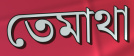
তেমাথা